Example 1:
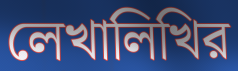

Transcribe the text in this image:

লেখালিখির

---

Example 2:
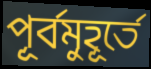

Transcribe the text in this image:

পূর্বমুহূর্তে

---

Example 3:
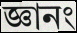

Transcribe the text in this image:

জ্ঞানং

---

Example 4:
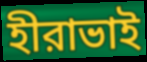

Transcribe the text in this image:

হীরাভাই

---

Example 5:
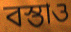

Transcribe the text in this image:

বস্তাও